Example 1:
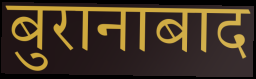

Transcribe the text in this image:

बुरानाबाद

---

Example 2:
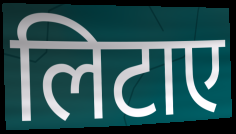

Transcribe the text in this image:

लिटाए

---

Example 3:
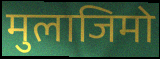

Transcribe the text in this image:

मुलाजिमो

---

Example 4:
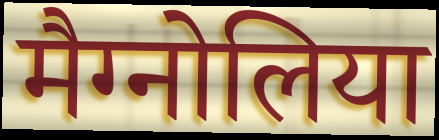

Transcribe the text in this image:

मैग्नोलिया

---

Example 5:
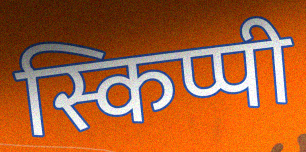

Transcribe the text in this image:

स्किप्पी